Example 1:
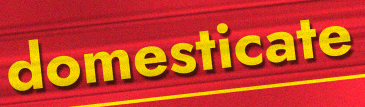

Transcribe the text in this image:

domesticate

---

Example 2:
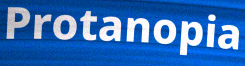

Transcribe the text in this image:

Protanopia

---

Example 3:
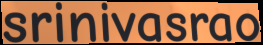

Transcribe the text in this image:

srinivasrao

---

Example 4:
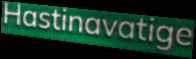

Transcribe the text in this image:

Hastinavatige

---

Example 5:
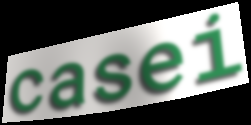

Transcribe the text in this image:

casei